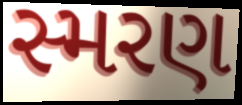
સ્‍મરણ